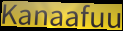
Kanaafuu